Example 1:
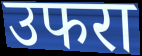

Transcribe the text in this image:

उफरा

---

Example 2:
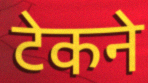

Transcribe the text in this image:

टेकने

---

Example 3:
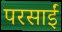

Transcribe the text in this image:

परसाईं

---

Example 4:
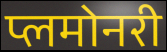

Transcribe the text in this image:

प्लमोनरी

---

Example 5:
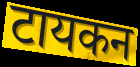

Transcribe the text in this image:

टायकन